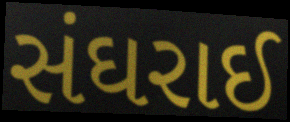
સંઘરાઈ